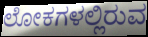
ಲೋಕಗಳಲ್ಲಿರುವ